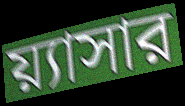
য়্যাসার